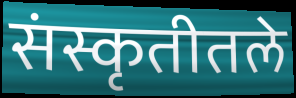
संस्कृतीतले